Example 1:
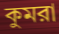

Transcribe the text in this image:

কুমরা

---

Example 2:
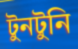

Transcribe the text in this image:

টুনটুনি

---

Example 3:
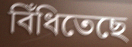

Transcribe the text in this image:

বিঁধিতেছে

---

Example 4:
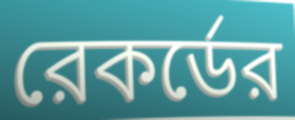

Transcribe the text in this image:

রেকর্ডের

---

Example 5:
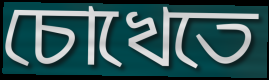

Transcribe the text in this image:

চোখেতে